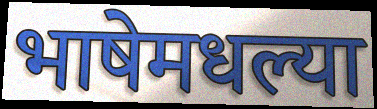
भाषेमधल्या